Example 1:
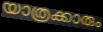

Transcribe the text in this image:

യാത്രക്കാരും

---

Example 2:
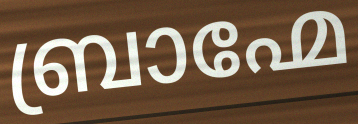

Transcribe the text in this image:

ബ്രാഹ്മേ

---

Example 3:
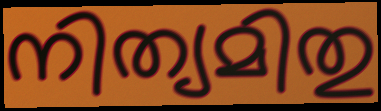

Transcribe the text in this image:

നിത്യമിതു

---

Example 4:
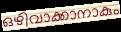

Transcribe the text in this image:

ഒഴിവാക്കാനാകും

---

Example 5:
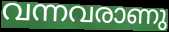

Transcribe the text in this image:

വന്നവരാണു